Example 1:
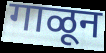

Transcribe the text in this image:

गाळून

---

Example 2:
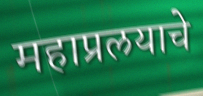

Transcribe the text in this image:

महाप्रलयाचे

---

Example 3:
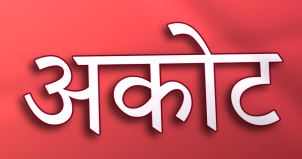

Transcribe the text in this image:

अकोट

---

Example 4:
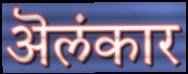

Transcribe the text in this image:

ऄलंकार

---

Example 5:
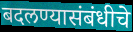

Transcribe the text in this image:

बदलण्यासंबंधीचे